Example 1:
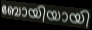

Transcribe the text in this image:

ബോയിയായി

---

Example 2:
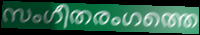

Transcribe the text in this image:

സംഗീതരംഗത്തെ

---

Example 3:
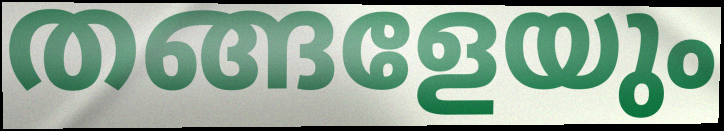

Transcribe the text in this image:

തങ്ങളേയും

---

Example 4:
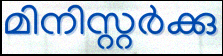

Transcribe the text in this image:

മിനിസ്റ്റർക്കു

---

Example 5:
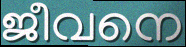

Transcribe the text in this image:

ജീവനെ